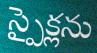
స్పైక్లను